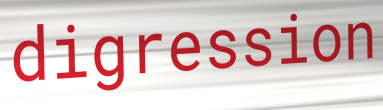
digression